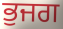
ਭੁਜਗ